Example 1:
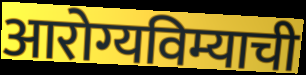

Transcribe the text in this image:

आरोग्यविम्याची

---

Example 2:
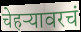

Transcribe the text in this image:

चेहऱ्यावरचं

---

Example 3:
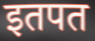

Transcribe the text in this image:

इतपत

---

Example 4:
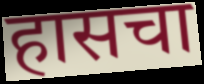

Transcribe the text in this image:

हासचा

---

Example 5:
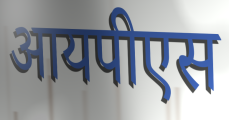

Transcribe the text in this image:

आयपीएस